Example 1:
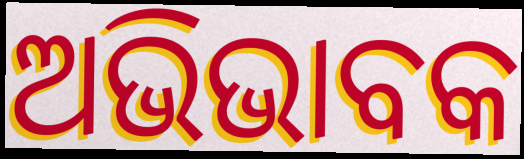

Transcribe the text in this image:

ଅଭିଭାବକ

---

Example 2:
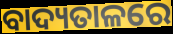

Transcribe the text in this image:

ବାଦ୍ୟତାଳରେ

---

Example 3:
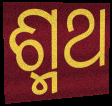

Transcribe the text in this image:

ଶ୍ମଥ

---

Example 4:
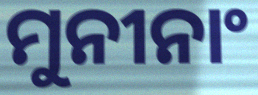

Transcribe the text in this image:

ମୁନୀନାଂ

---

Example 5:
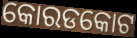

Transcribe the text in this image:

କୋରଡକୋଟ